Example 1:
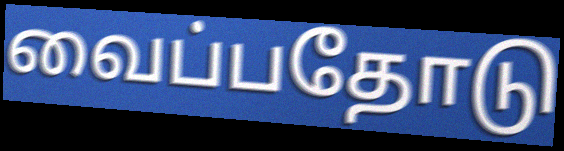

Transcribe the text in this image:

வைப்பதோடு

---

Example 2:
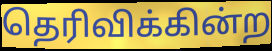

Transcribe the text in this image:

தெரிவிக்கின்ற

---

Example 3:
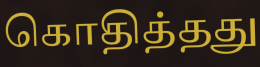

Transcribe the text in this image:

கொதித்தது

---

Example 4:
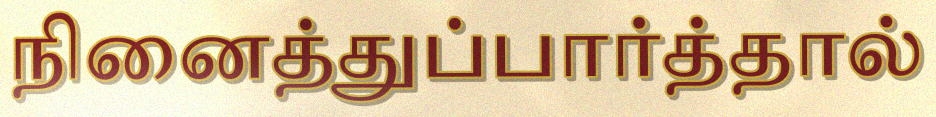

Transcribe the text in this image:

நினைத்துப்பார்த்தால்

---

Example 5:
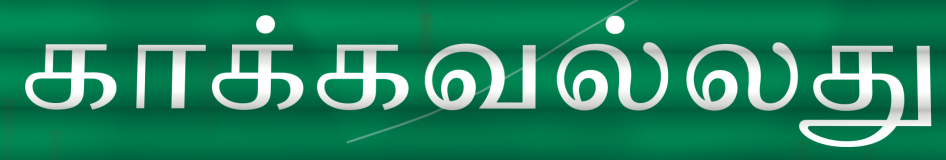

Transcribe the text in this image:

காக்கவல்லது